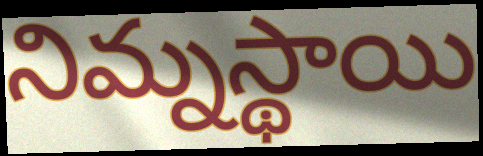
నిమ్నస్థాయి